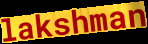
lakshman